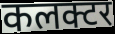
कलक्टर